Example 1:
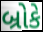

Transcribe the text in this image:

બ્રોકે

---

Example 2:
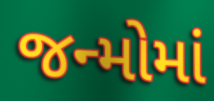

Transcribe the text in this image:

જન્મોમાં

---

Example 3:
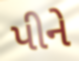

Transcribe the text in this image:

પીને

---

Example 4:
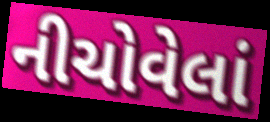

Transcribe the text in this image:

નીચોવેલાં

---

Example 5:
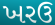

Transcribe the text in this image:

ખરઉ